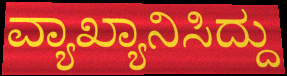
ವ್ಯಾಖ್ಯಾನಿಸಿದ್ದು